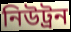
নিউট্ৰন